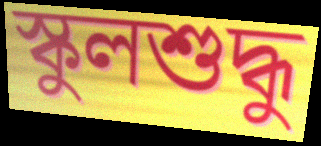
স্কুলশুদ্ধু